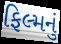
ફિલ્મનું